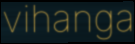
vihanga